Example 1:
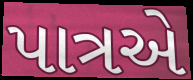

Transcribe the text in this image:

પાત્રએ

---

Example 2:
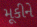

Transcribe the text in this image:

મૂકીને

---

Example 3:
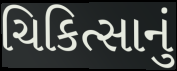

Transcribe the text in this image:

ચિકિત્સાનું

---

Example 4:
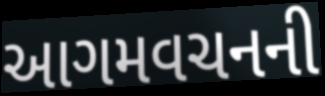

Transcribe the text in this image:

આગમવચનની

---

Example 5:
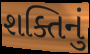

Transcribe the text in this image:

શક્તિનું